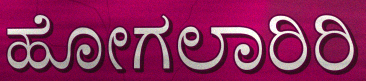
ಹೋಗಲಾರಿರಿ